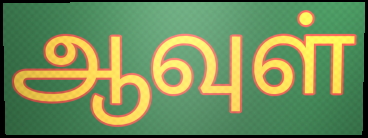
ஆவுள்